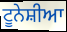
ਟੂਨੇਸ਼ੀਆ